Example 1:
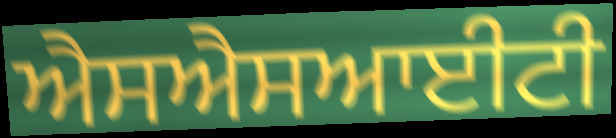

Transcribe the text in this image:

ਐਸਐਸਆਈਟੀ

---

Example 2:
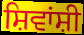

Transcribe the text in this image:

ਸ਼ਿਵਾਂਸ਼ੀ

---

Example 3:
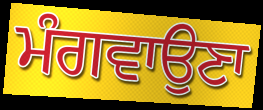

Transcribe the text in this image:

ਮੰਗਵਾਉਣਾ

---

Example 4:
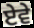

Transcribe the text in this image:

ਏਵੇ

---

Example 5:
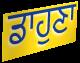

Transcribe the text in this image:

ਡਾਹੁਣਾ